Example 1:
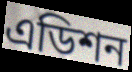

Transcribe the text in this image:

এডিশন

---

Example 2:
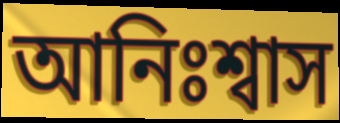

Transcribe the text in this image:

আনিঃশ্বাস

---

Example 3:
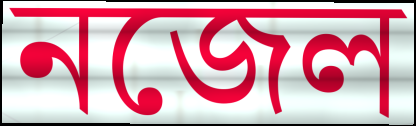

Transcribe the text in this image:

নজেল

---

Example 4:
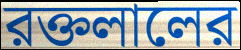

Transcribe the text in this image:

রক্তলালের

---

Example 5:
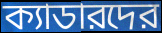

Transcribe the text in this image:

ক্যাডারদের